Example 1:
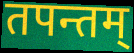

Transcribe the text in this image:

तपन्तम्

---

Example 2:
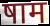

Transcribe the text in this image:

षाम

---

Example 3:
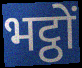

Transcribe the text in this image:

भट्ठों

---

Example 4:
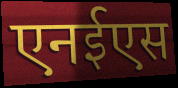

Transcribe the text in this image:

एनईएस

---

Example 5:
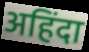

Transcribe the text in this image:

अहिंदा